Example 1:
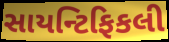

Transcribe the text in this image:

સાયન્ટિફિકલી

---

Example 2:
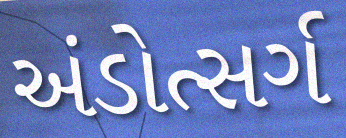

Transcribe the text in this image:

અંડોત્સર્ગ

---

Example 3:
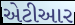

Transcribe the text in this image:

એટીઆર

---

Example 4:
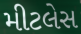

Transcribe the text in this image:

મીટલેસ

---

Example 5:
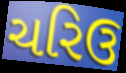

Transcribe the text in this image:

ચરિઉ